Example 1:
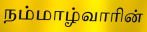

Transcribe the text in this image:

நம்மாழ்வாரின்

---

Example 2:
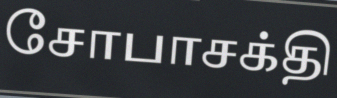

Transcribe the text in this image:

சோபாசக்தி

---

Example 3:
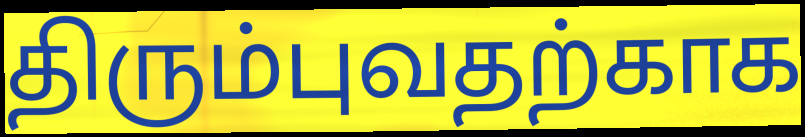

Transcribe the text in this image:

திரும்புவதற்காக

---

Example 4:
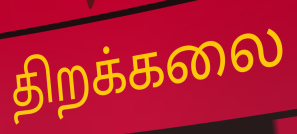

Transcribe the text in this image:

திறக்கலை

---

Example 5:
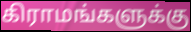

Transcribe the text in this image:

கிராமங்களுக்கு